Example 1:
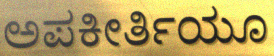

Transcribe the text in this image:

ಅಪಕೀರ್ತಿಯೂ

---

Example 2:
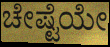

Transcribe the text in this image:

ಚೇಷ್ಟೆಯೇ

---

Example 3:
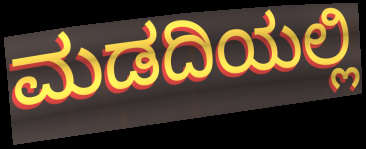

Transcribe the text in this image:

ಮಡದಿಯಲ್ಲಿ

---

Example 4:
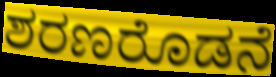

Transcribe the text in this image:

ಶರಣರೊಡನೆ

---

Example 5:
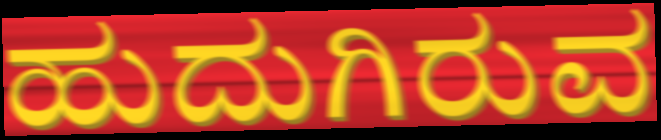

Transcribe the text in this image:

ಹುದುಗಿರುವ